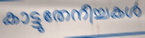
കാട്ടുതേനീച്ചകൾ